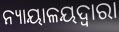
ନ୍ୟାୟାଳୟଦ୍ୱାରା